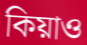
কিয়াও